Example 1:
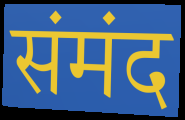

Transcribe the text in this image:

संमंद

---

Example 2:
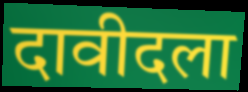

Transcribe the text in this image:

दावीदला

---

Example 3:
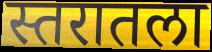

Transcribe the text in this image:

स्तरातला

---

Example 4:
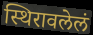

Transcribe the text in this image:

स्थिरावलेलं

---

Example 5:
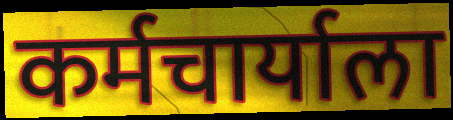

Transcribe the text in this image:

कर्मचार्याला